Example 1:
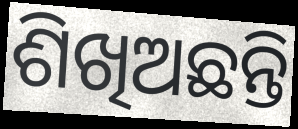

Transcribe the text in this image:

ଶିଖିଅଛନ୍ତି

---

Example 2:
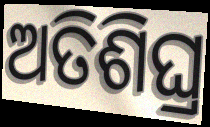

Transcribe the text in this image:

ଅତିଶିଘ୍ର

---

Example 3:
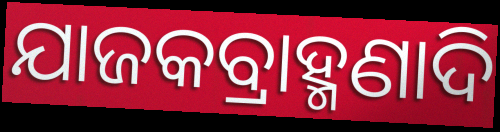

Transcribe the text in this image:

ଯାଜକବ୍ରାହ୍ମଣାଦି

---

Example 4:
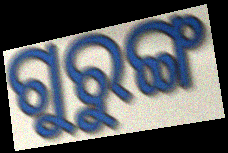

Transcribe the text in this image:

ଗୁରୁଙ୍ଗ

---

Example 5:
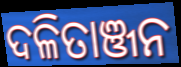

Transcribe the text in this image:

ଦଳିତାଞ୍ଜନ